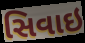
સિવાઇ